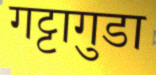
गट्टागुडा